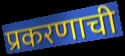
प्रकरणाची